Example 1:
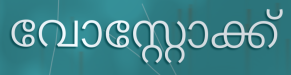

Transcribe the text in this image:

വോസ്റ്റോക്ക്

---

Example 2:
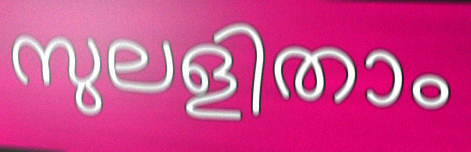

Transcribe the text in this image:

സുലളിതാം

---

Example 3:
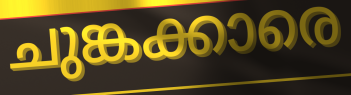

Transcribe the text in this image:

ചുങ്കക്കാരെ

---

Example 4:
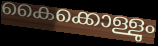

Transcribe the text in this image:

കൈക്കൊള്ളും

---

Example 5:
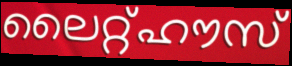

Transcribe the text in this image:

ലൈറ്റ്ഹൗസ്